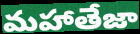
మహాతేజా